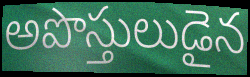
అపొస్తులుడైన